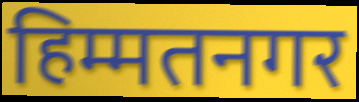
हिम्मतनगर